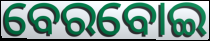
ବେରବୋଇ